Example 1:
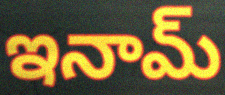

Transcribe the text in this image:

ఇనామ్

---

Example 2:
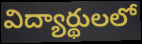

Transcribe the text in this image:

విద్యార్థులలో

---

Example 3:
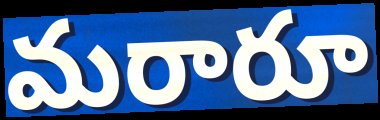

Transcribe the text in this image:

మరారూ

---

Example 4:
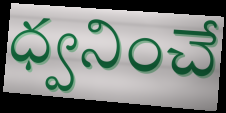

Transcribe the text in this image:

ధ్వనించే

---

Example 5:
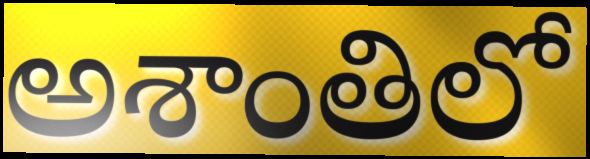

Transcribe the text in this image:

అశాంతిలో